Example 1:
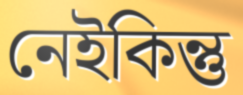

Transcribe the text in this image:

নেইকিন্তু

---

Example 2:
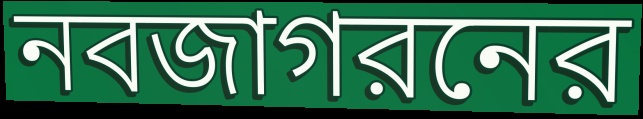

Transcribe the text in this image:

নবজাগরনের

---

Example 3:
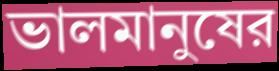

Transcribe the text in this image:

ভালমানুষের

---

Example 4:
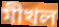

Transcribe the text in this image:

মীখল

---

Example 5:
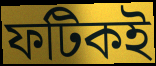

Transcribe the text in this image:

ফটিকই